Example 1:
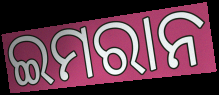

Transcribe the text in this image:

ଇମରାନ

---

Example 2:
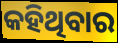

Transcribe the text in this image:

କହିଥିବାର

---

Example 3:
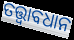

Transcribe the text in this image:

ତତ୍ତ୍ବାବଧାନ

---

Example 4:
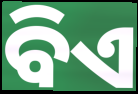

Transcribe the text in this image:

ବିଏ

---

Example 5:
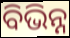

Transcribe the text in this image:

ବିଭିନ୍ନ